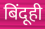
बिंदूही